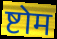
ष्टोम